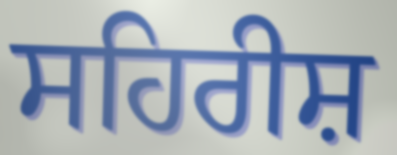
ਸਹਿਰੀਸ਼